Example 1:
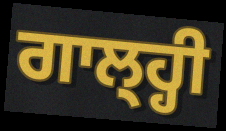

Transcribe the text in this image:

ਗਾਲ੍ਹ੍ਹੀ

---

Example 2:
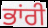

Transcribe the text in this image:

ਭਾਂਰੀ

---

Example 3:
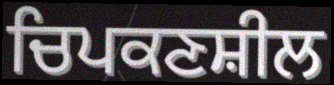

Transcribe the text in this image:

ਚਿਪਕਣਸ਼ੀਲ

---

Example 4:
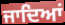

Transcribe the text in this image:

ਜਾਦਿਆਂ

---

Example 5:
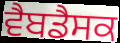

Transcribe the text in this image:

ਵੈਬਡੈਸਕ